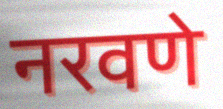
नरवणे